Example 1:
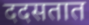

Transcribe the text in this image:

ददसतात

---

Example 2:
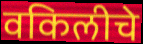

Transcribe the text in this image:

वकिलीचे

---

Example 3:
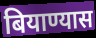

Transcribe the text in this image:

बियाण्यास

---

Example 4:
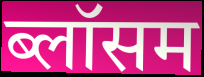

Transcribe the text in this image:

ब्लॉसम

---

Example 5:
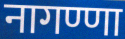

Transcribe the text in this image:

नागण्णा